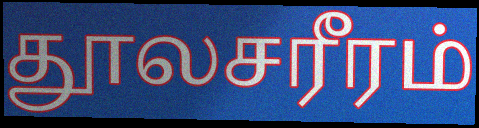
தூலசரீரம்